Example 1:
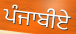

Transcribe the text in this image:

ਪੰਜਾਬੀਏ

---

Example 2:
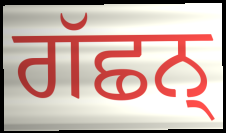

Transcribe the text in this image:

ਗੱਛਨ੍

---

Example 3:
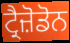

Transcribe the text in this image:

ਟ੍ਰੈਜ਼ੋਡੋਨ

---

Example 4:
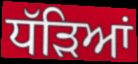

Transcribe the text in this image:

ਧੱੜਿਆਂ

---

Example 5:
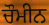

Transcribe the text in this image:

ਚੌਮੀਨ